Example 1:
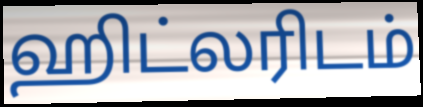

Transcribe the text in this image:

ஹிட்லரிடம்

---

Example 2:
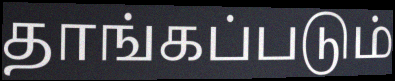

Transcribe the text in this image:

தாங்கப்படும்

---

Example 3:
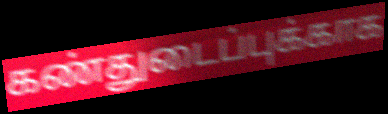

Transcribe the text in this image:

கண்துடைப்புக்காக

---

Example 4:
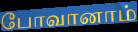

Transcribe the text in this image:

போவானாம்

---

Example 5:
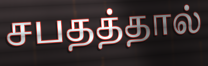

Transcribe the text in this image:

சபதத்தால்